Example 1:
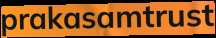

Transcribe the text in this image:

prakasamtrust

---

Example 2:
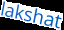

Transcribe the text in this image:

lakshat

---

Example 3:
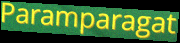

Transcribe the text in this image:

Paramparagat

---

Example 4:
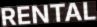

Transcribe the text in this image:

RENTAL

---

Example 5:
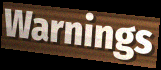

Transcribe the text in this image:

Warnings